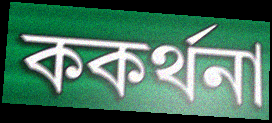
ককৰ্থনা